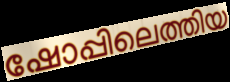
ഷോപ്പിലെത്തിയ